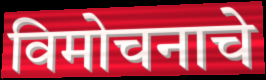
विमोचनाचे